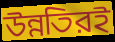
উন্নতিরই